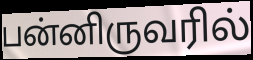
பன்னிருவரில்